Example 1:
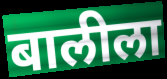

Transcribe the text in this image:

बालीला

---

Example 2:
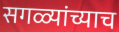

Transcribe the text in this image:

सगळ्यांच्याच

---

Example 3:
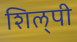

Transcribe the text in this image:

शिल्पी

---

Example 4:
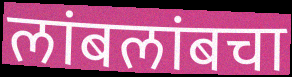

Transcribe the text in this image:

लांबलांबचा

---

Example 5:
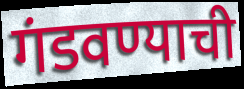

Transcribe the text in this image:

गंडवण्याची